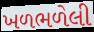
ખળભળેલી